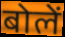
बोलें